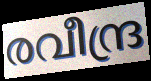
രവീന്ദ്ര